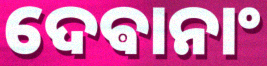
ଦେଵାନାଂ